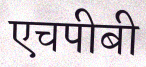
एचपीबी